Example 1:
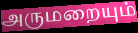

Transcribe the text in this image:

அருமறையும்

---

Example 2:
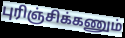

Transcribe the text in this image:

புரிஞ்சிக்கணும்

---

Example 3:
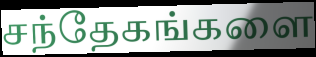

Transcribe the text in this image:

சந்தேகங்களை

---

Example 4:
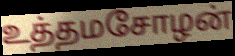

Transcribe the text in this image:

உத்தமசோழன்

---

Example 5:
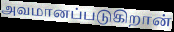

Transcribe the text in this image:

அவமானப்படுகிறான்